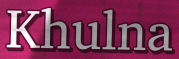
Khulna